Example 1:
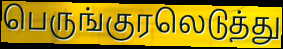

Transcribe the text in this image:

பெருங்குரலெடுத்து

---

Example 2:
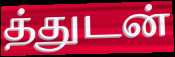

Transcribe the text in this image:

த்துடன்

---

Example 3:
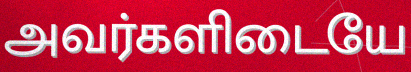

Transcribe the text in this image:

அவர்களிடையே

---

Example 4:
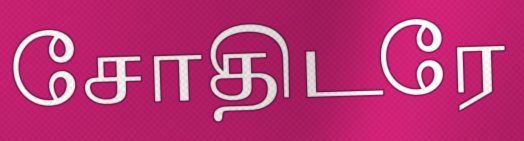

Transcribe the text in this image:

சோதிடரே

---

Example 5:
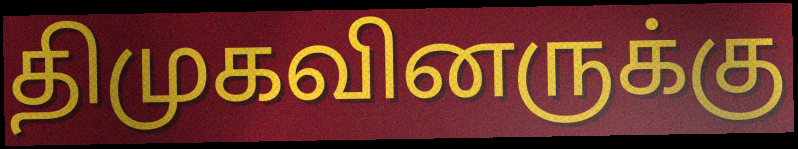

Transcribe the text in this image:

திமுகவினருக்கு